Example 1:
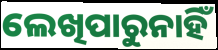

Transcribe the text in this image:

ଲେଖିପାରୁନାହିଁ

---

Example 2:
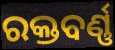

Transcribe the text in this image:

ରକ୍ତବର୍ଣ୍ଣ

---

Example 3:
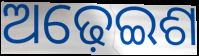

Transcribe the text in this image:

ଅଢ଼େଇଶ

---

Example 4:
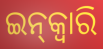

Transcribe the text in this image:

ଇନ୍‌କ୍ଵାରି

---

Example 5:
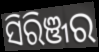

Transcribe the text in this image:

ସିରିଞ୍ଜର